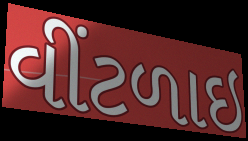
વીંટળાઇ